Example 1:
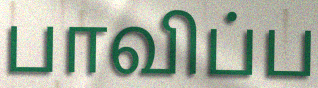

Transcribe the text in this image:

பாவிப்ப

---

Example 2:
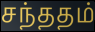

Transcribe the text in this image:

சந்ததம்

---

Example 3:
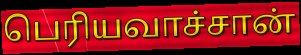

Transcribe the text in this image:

பெரியவாச்சான்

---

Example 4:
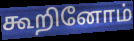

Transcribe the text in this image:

கூறினோம்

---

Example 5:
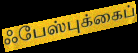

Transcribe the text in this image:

ஃபேஸ்புக்கைப்